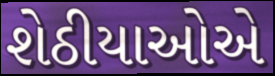
શેઠીયાઓએ